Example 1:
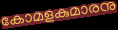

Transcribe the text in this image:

കോമളകുമാരനു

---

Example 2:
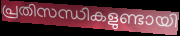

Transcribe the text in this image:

പ്രതിസന്ധികളുണ്ടായി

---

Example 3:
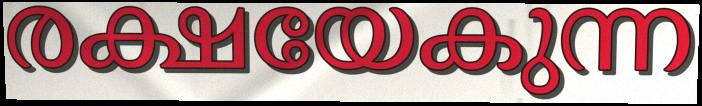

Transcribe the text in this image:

രക്ഷയേകുന്ന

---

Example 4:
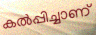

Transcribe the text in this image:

കൽപ്പിച്ചാണ്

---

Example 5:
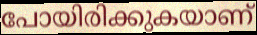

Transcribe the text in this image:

പോയിരിക്കുകയാണ്